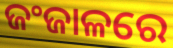
ଜଂଜାଳରେ